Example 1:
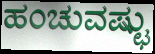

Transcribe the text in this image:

ಹಂಚುವಷ್ಟು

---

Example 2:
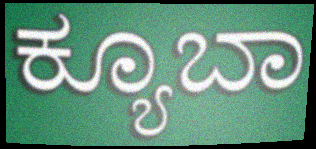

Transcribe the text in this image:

ಕ್ಯೂಬಾ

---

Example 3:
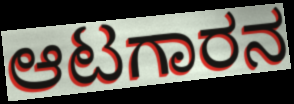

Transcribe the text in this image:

ಆಟಗಾರನ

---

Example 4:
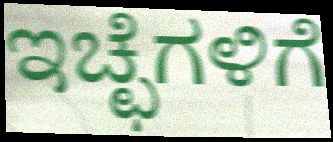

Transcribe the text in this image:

ಇಚ್ಛೆಗಳಿಗೆ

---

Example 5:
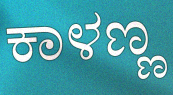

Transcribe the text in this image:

ಕಾಳಣ್ಣ